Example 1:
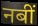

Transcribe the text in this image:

नबीं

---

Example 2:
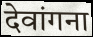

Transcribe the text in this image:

देवांगना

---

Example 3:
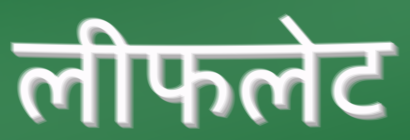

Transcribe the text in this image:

लीफलेट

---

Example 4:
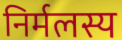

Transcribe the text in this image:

निर्मलस्य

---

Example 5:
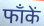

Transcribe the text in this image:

फाँकें